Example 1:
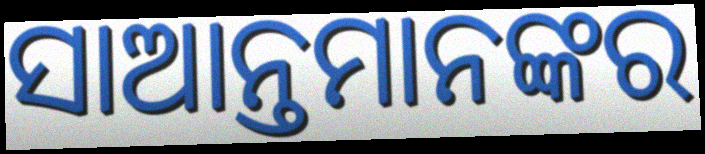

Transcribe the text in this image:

ସାଆନ୍ତମାନଙ୍କର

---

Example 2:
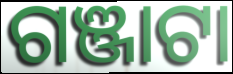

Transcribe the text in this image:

ଗଞ୍ଜାଟା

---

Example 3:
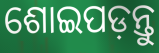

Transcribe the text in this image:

ଶୋଇପଡ଼ନ୍ତୁ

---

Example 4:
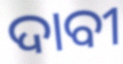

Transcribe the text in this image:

ଦାବୀ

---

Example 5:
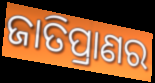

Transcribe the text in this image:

ଜାତିପ୍ରାଣର